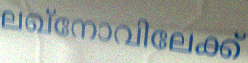
ലഖ്നോവിലേക്ക്